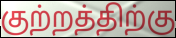
குற்றத்திற்கு